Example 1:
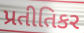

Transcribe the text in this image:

પ્રતીતિકર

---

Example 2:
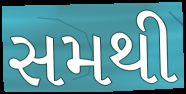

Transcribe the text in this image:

સમથી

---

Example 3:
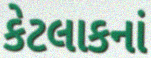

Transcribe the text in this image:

કેટલાકનાં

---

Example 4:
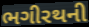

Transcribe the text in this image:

ભગીરથની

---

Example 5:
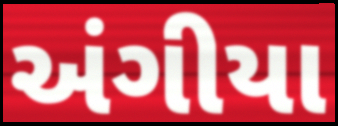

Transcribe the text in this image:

અંગીયા